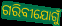
ଗରିବୀଯୋଗୁଁ